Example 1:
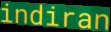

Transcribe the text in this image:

indiran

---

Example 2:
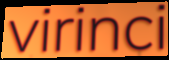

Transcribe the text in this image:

virinci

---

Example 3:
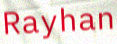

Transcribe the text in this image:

Rayhan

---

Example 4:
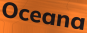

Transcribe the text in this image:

Oceana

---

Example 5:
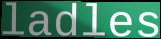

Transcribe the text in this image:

ladles